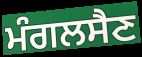
ਮੰਗਲਸੈਣ